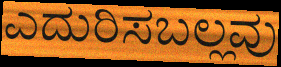
ಎದುರಿಸಬಲ್ಲವು